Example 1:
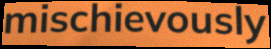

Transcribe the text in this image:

mischievously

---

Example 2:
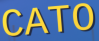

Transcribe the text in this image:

CATO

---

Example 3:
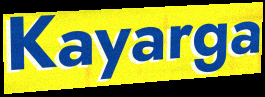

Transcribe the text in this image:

Kayarga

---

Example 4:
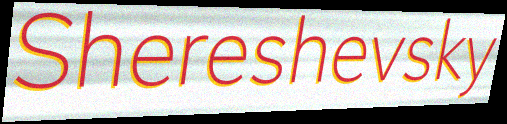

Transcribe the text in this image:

Shereshevsky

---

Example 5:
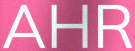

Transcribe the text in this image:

AHR